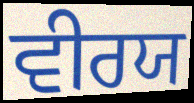
ਵੀਰਯ